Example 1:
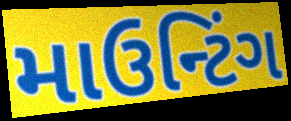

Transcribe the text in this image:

માઉન્ટિંગ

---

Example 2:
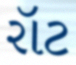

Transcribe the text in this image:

રૉટ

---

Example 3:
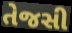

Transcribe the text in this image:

તેજસી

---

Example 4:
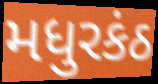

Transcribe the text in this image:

મધુરકંઠ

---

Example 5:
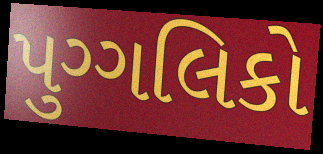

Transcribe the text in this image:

પુગ્ગલિકો